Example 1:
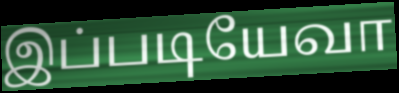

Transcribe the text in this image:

இப்படியேவா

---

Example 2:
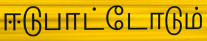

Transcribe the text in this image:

ஈடுபாட்டோடும்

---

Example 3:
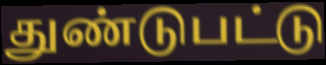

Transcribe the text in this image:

துண்டுபட்டு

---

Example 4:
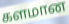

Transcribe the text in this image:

களமான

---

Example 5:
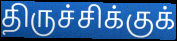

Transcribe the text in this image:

திருச்சிக்குக்